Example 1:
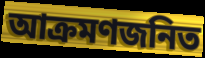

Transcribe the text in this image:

আক্রমণজনিত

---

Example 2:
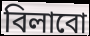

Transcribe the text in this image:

বিলাবো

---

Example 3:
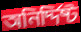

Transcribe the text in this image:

অনির্দ্দিষ্ট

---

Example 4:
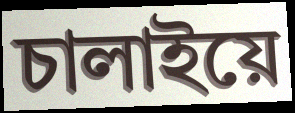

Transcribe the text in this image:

চালাইয়ে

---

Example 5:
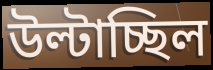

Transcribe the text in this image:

উল্টাচ্ছিল